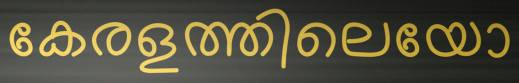
കേരളത്തിലെയോ